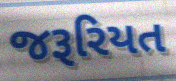
જરૂરિયત